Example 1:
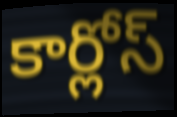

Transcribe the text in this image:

కార్లోస్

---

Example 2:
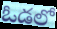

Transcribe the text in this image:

ఓడలో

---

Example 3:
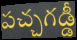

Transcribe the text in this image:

పచ్చగడ్డీ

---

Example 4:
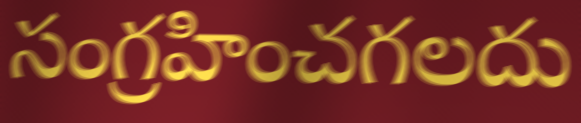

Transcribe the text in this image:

సంగ్రహించగలదు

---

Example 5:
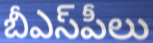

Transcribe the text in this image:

బీఎస్‌పీలు